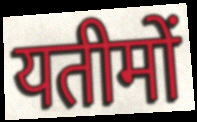
यतीमों